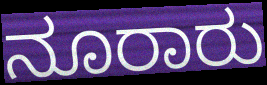
ನೂರಾರು